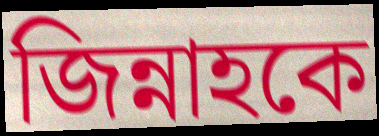
জিন্নাহকে